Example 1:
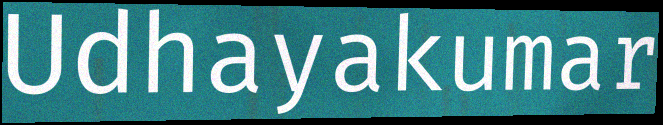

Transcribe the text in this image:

Udhayakumar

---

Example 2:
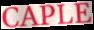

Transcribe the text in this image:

CAPLE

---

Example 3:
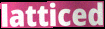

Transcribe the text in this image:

latticed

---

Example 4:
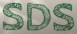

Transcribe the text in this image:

SDS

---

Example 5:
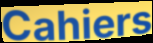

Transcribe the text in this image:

Cahiers